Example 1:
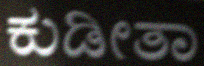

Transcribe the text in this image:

ಕುಡೀತಾ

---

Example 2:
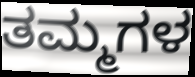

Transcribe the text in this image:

ತಮ್ಮಗಳ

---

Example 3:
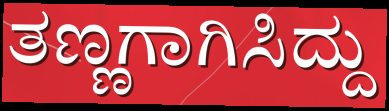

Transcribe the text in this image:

ತಣ್ಣಗಾಗಿಸಿದ್ದು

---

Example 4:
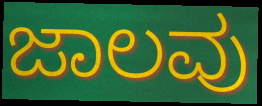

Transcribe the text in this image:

ಜಾಲವು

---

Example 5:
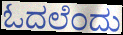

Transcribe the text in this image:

ಓದಲೆಂದು